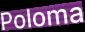
Poloma